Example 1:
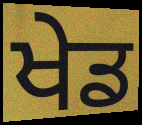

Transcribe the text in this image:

ਖੇਡ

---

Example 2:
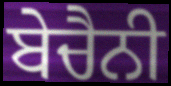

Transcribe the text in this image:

ਬੇਚੈਨੀ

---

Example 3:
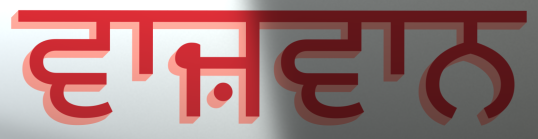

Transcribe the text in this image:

ਵਾਜ਼ਵਾਨ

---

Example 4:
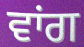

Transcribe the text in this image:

ਵਾਂਗ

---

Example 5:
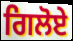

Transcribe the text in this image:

ਗਿਲੋਏ